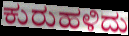
ಕುರುಹಳಿದು